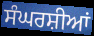
ਸੰਘਰਸ਼ੀਆਂ